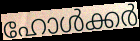
ഹോൾക്കർ